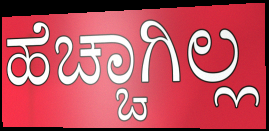
ಹೆಚ್ಚಾಗಿಲ್ಲ